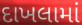
દાખલામાં